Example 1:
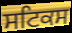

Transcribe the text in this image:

ਸਟਿਕਸ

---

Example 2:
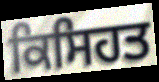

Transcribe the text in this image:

ਕਿਸਿਹਤ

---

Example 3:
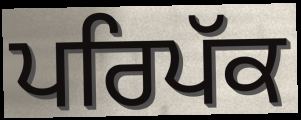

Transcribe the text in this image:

ਪਰਿਪੱਕ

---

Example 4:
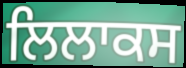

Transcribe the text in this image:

ਲਿਲਾਕਸ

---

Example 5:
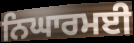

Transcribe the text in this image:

ਨਿਘਾਰਮਈ